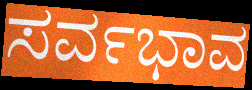
ಸರ್ವಭಾವ